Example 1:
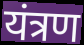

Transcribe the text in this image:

यंत्रण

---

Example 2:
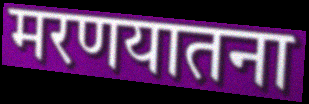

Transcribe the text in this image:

मरणयातना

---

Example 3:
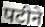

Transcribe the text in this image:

पटीने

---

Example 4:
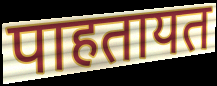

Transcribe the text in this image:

पाहतायत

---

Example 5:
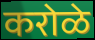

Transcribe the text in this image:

करोळे